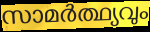
സാമർത്ഥ്യവും